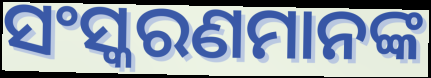
ସଂସ୍କରଣମାନଙ୍କ